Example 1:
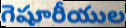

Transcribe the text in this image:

గెషూరీయుల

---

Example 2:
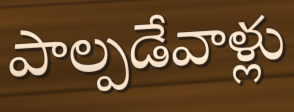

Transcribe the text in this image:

పాల్పడేవాళ్లు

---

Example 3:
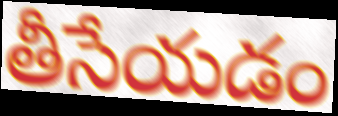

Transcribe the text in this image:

తీసేయడం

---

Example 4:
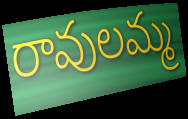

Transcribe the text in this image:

రావులమ్మ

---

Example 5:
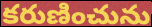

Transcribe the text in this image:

కరుణించును